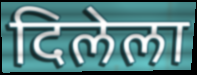
दिलेला